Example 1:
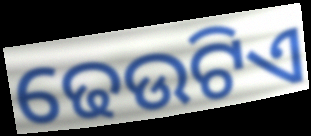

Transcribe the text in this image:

ଢେଉଟିଏ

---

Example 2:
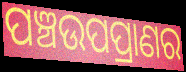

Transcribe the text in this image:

ପଞ୍ଚଉପପ୍ରାଣର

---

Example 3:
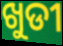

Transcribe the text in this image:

ଖୁଡୀ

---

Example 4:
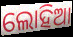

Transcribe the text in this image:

ଲୋହିଆ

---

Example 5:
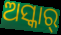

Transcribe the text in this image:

ଅସ୍କାର୍